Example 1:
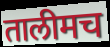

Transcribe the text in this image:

तालीमच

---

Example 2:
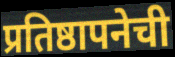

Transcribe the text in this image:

प्रतिष्ठापनेची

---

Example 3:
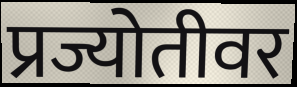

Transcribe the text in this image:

प्रज्योतीवर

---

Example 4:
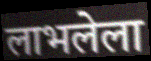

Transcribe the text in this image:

लाभलेला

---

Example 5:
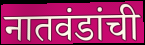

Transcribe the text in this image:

नातवंडांची